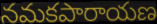
నమకపారాయణ